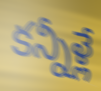
కన్నీళ్లే